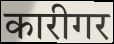
कारीगर